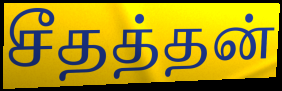
சீதத்தன்